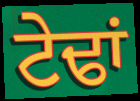
ਟੇਢਾਂ